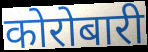
कोरोबारी